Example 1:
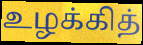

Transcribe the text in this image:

உழக்கித்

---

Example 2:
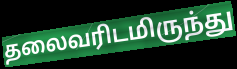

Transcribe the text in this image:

தலைவரிடமிருந்து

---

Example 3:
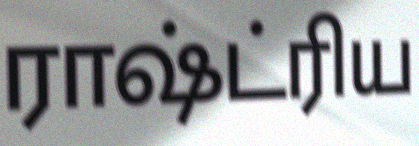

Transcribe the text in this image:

ராஷ்ட்ரிய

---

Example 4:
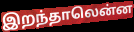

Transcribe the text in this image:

இறந்தாலென்ன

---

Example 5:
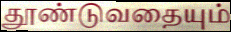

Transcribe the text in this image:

தூண்டுவதையும்